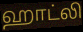
ஹாட்லி